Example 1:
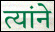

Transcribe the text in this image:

त्यांने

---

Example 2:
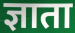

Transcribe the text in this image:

ज्ञाता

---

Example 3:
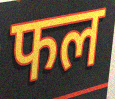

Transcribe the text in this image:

फल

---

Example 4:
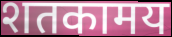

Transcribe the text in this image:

शतकामय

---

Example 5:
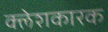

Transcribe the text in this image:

क्लेशकारक